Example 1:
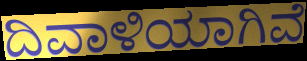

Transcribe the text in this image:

ದಿವಾಳಿಯಾಗಿವೆ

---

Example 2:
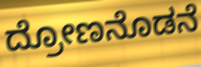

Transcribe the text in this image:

ದ್ರೋಣನೊಡನೆ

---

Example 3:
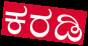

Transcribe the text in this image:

ಕರಡಿ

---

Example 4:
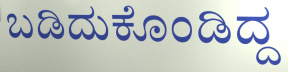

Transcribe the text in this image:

ಬಡಿದುಕೊಂಡಿದ್ದ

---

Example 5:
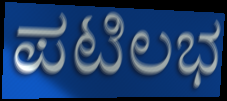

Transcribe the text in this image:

ಪಟಿಲಭ